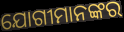
ଯୋଗୀମାନଙ୍କର